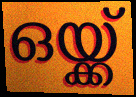
ഒയ്ക്ക്